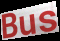
Bus